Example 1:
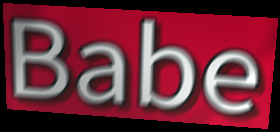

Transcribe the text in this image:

Babe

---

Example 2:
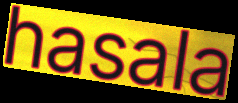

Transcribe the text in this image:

hasala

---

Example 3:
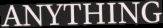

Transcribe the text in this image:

ANYTHING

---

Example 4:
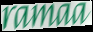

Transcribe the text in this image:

ramaa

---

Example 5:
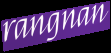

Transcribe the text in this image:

rangnan